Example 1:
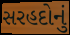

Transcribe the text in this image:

સરહદોનું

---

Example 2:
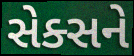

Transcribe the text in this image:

સેક્સને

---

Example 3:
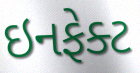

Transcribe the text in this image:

ઇનફેક્ટ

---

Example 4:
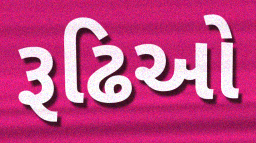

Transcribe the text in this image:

રૂઢિઓ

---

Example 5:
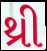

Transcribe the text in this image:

થ્રી